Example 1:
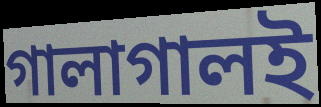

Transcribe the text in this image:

গালাগালই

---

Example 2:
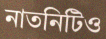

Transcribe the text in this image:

নাতনিটিও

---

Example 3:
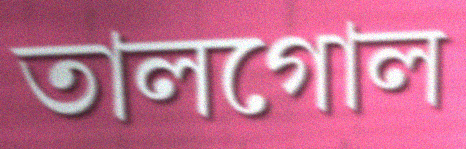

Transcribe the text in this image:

তালগোল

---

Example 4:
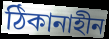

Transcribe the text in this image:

ঠিকানাহীন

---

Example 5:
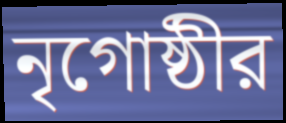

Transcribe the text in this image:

নৃগোষ্ঠীর